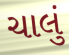
ચાલું